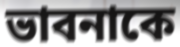
ভাবনাকে